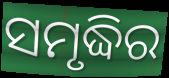
ସମୃଦ୍ଧିର